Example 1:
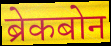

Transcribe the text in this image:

ब्रेकबोन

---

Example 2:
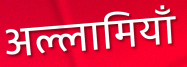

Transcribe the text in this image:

अल्लामियाँ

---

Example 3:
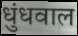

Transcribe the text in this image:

धुंधवाल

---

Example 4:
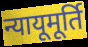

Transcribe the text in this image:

न्यायूमूर्ति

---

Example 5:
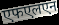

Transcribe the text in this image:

एफएलएन